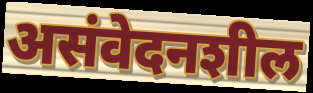
असंवेदनशील